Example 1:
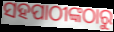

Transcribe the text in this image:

ସହପାଠୀଙ୍କଠାରୁ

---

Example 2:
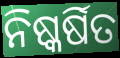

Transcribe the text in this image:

ନିଷ୍କର୍ଷିତ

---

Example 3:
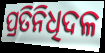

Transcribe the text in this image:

ପ୍ରତିନିଧିଦଳ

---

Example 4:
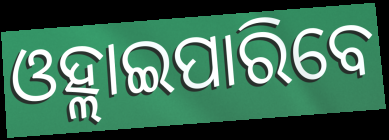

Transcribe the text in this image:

ଓହ୍ଲାଇପାରିବେ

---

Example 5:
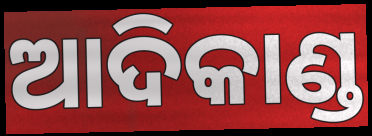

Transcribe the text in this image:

ଆଦିକାଣ୍ଡ